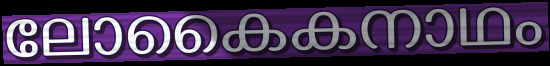
ലോകൈകനാഥം